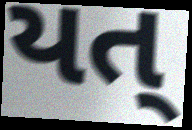
યત્